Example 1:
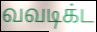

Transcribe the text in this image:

வவடிக்ட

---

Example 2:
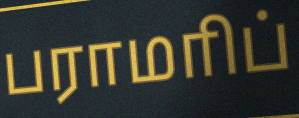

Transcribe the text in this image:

பராமரிப்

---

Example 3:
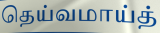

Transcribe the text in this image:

தெய்வமாய்த்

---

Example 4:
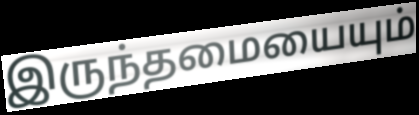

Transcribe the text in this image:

இருந்தமையையும்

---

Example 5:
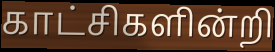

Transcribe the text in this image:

காட்சிகளின்றி